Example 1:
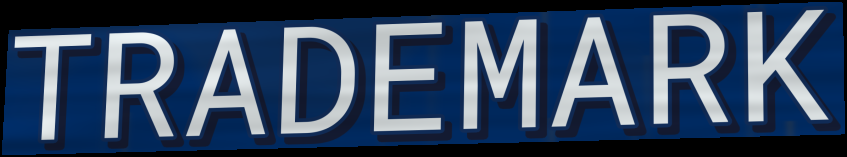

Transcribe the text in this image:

TRADEMARK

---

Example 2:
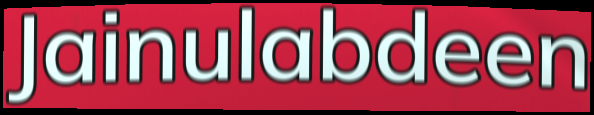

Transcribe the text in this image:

Jainulabdeen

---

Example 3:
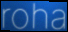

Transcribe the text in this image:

roha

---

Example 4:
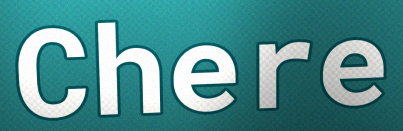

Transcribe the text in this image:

Chere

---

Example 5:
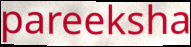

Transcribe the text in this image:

pareeksha